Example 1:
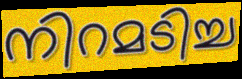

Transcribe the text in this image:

നിറമടിച്ച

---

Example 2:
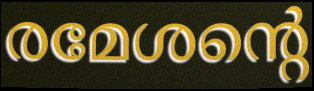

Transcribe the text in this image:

രമേശന്റെ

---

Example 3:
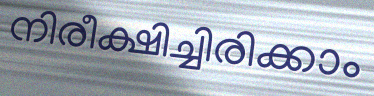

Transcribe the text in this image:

നിരീക്ഷിച്ചിരിക്കാം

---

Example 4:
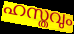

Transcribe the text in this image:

ഹസ്തവും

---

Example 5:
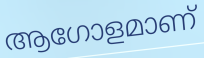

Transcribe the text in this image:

ആഗോളമാണ്